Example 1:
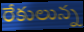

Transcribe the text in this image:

రేకులున్న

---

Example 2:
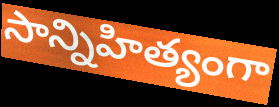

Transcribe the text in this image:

సాన్నిహిత్యంగా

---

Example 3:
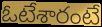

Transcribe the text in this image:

ఓటేశారంటే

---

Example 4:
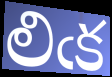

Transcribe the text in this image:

లిఁక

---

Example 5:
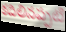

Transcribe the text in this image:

కదిలినప్పటి